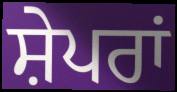
ਸ਼ੇਪਰਾਂ